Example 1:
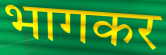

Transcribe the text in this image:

भागकर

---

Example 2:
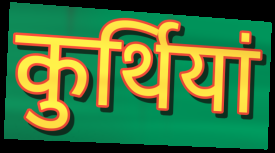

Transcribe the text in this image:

कुर्थियां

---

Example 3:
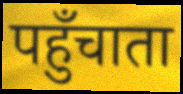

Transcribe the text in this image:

पहुँचाता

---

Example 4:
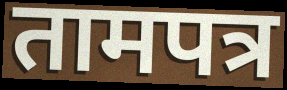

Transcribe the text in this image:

तामपत्र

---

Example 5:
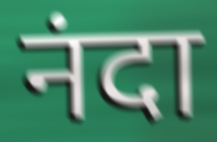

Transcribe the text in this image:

नंदा